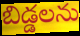
బిడ్డలను